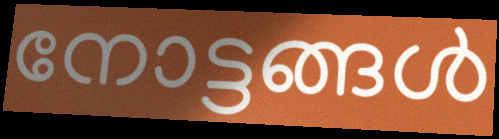
നോട്ടങ്ങൾ